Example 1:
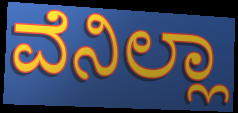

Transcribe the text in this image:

ವೆನಿಲ್ಲಾ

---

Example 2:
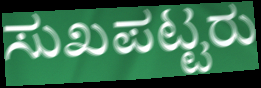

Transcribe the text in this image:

ಸುಖಪಟ್ಟರು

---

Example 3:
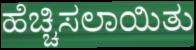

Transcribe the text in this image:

ಹೆಚ್ಚಿಸಲಾಯಿತು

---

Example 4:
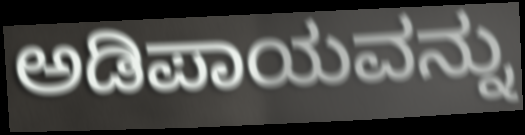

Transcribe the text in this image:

ಅಡಿಪಾಯವನ್ನು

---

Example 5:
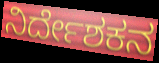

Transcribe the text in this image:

ನಿರ್ದೇಶಕನ